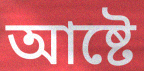
আষ্টে